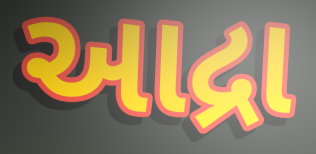
આદ્રા